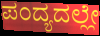
ಪಂದ್ಯದಲ್ಲೇ